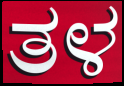
ತಳ